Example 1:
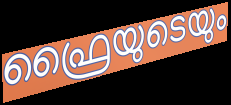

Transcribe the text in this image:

ഫ്രൈയുടെയും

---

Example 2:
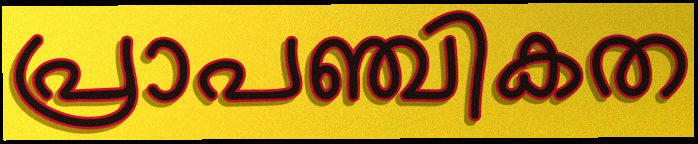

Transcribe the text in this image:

പ്രാപഞ്ചികത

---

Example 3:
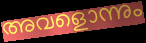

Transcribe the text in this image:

അവളൊന്നും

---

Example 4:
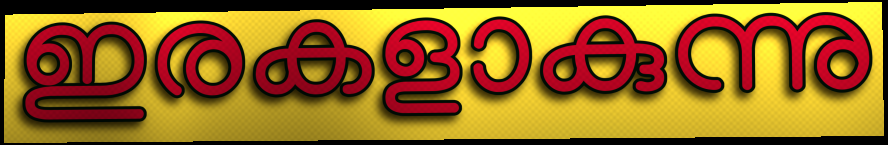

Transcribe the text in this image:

ഇരകളാകുന്നു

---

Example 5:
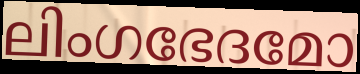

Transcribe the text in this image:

ലിംഗഭേദമോ